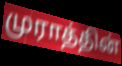
முராத்தின்